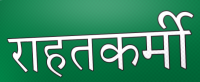
राहतकर्मी